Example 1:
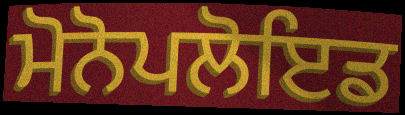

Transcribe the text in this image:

ਮੋਨੋਪਲੋਇਡ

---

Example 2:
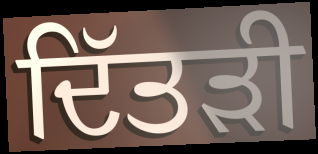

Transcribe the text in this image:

ਦਿੱਤੜੀ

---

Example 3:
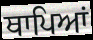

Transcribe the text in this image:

ਥਾਪਿਆਂ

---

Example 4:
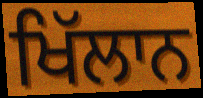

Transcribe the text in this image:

ਖਿੱਲਾਨ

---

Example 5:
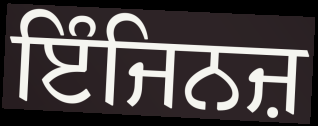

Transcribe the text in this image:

ਇੰਜਿਨਜ਼